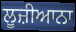
ਲੂਜ਼ੀਆਨਾ